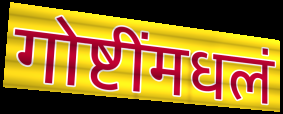
गोष्टींमधलं